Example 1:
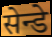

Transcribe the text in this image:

सेन्डे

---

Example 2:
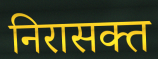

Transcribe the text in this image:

निरासक्त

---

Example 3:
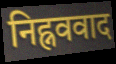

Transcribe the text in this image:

निह्नववाद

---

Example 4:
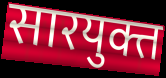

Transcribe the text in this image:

सारयुक्त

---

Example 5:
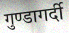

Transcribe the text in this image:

गुण्डागर्दी